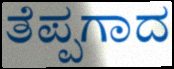
ತೆಪ್ಪಗಾದ